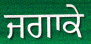
ਜਗਾਕੇ